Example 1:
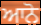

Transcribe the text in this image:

ਆਨੋ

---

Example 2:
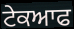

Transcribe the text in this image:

ਟੇਕਆਫ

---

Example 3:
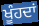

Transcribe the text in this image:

ਖੂੰਹਦਾਂ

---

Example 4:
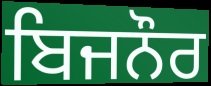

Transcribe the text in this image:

ਬਿਜਨੌਰ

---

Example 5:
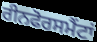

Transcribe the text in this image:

ਰੀਨਫੋਰਸਮੈਂਟਾਂ